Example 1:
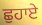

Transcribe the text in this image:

ਛੁਹਾਏ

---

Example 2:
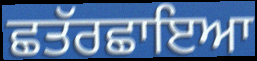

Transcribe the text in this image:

ਛਤੱਰਛਾਇਆ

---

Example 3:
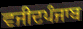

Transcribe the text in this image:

ਵਜੀਦਪੰਜਾਬ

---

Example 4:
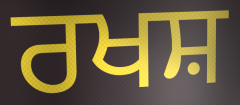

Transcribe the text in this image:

ਰਖਸ਼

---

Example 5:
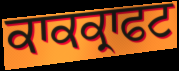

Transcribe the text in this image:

ਕਾਕਕ੍ਰਾਫਟ